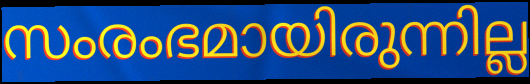
സംരംഭമായിരുന്നില്ല